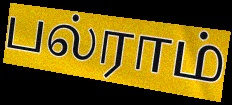
பல்ராம்